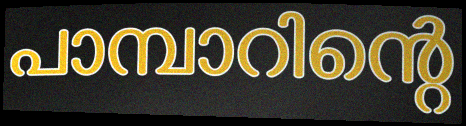
പാമ്പാറിന്റെ